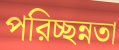
পরিচ্ছন্নতা